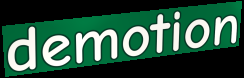
demotion